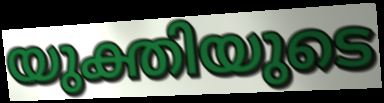
യുക്തിയുടെ